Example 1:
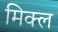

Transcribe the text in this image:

मिक्ल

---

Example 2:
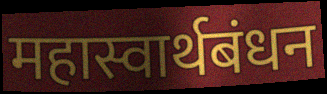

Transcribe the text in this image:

महास्वार्थबंधन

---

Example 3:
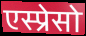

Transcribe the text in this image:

एस्प्रेसो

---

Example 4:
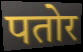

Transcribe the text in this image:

पतोर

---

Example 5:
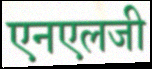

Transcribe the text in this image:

एनएलजी